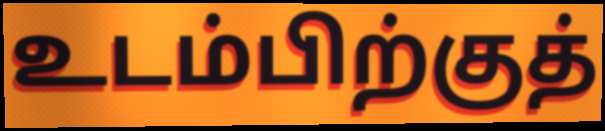
உடம்பிற்குத்